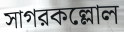
সাগরকল্লোল